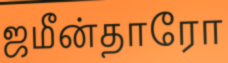
ஜமீன்தாரோ